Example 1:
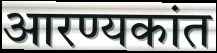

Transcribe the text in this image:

आरण्यकांत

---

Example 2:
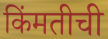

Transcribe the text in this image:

किंमतीची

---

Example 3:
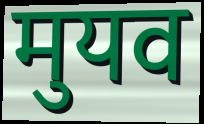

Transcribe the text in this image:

मुयव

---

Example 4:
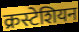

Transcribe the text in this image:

क्रस्टेशियन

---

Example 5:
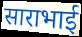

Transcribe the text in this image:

साराभाई